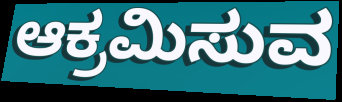
ಆಕ್ರಮಿಸುವ